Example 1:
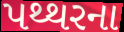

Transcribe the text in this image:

પથ્થરના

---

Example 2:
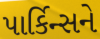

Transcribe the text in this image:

પાર્કિન્સને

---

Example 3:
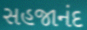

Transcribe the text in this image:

સહજાનંદ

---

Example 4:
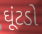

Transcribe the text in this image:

ઘૂંટડો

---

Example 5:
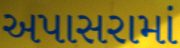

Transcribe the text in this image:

અપાસરામાં